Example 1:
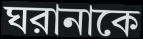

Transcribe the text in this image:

ঘরানাকে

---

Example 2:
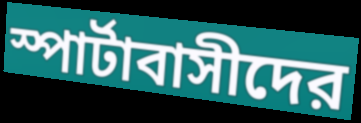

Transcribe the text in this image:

স্পার্টাবাসীদের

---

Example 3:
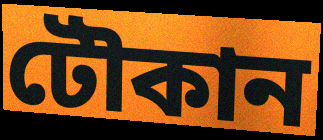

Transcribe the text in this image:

টৌকান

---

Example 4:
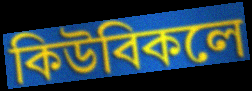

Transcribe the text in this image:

কিউবিকলে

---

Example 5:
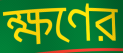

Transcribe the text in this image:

ক্ষণের